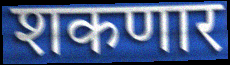
शकणार